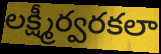
లక్ష్మీర్వరకలా